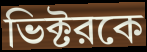
ভিক্টরকে